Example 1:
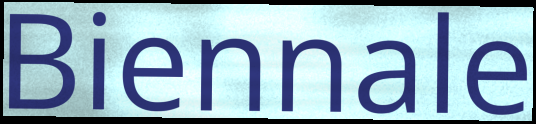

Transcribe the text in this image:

Biennale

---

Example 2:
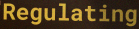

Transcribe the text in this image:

Regulating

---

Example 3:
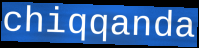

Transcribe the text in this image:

chiqqanda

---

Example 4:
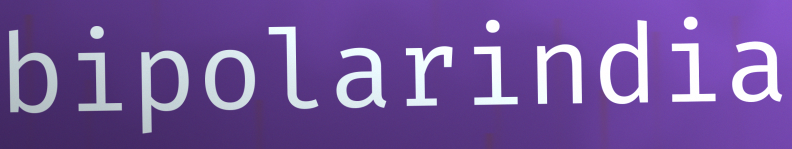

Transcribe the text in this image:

bipolarindia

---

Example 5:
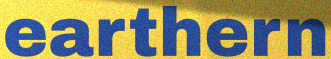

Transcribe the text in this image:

earthern